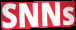
SNNs